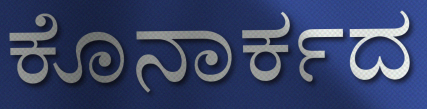
ಕೊನಾರ್ಕದ